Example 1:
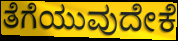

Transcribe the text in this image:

ತೆಗೆಯುವುದೇಕೆ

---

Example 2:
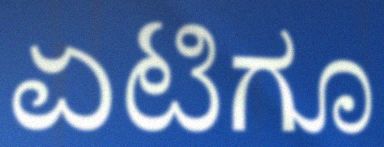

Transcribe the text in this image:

ಏಟಿಗೂ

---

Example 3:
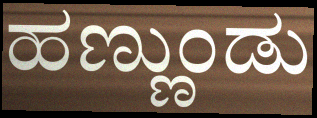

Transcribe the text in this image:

ಹಣ್ಣುಂಡು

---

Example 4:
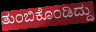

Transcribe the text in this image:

ತುಂಬಿಕೊಂಡಿದ್ದು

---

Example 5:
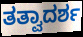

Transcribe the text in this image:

ತತ್ವಾದರ್ಶ